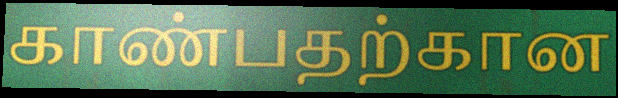
காண்பதற்கான